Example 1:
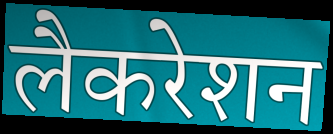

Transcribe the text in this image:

लैकरेशन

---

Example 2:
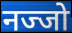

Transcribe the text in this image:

नज्जो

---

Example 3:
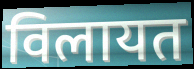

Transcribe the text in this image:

विलायत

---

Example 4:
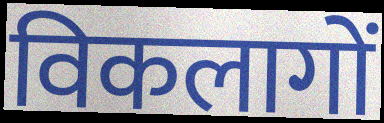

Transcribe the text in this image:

विकलागों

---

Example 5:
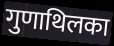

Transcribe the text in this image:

गुणाथिलका